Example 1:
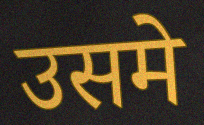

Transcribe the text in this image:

उसमे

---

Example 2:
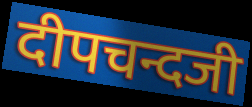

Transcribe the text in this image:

दीपचन्दजी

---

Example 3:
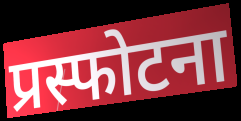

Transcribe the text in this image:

प्रस्फोटना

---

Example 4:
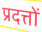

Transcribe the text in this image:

प्रदत्तों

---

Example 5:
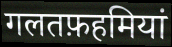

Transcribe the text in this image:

गलतफ़हमियां